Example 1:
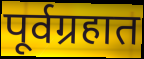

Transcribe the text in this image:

पूर्वग्रहात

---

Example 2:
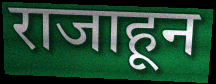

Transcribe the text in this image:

राजाहून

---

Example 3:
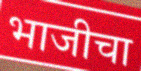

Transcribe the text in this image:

भाजीचा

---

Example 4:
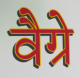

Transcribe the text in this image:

वैग्रे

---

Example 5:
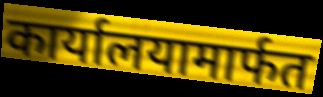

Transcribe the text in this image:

कार्यालयामार्फत